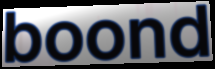
boond